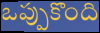
ఒప్పుకొంది